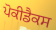
ਪੋਕੀਡੈਕਸ